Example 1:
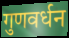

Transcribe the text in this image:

गुणवर्धन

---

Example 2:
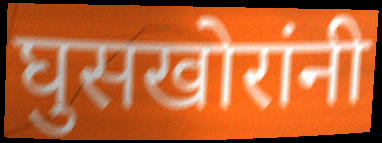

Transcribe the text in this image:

घुसखोरांनी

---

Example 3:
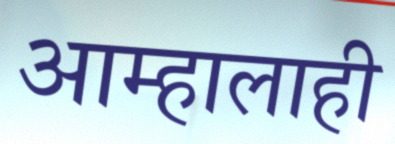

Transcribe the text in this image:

आम्हालाही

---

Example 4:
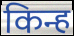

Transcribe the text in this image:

किन्ह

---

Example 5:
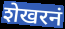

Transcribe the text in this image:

शेखरनं